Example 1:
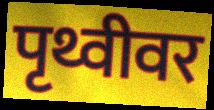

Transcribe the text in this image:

पृथ्वीवर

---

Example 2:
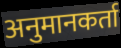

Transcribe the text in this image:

अनुमानकर्ता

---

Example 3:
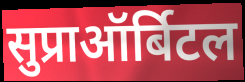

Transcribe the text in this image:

सुप्राऑर्बिटल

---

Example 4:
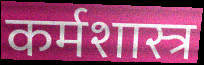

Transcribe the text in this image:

कर्मशास्त्र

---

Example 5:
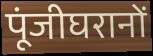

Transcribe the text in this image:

पूंजीघरानों